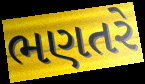
ભણતરે